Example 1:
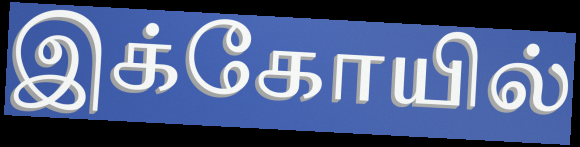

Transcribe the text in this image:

இக்கோயில்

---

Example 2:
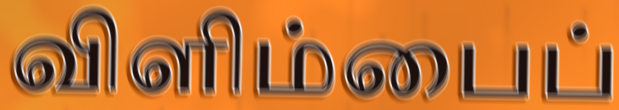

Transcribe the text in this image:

விளிம்பைப்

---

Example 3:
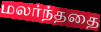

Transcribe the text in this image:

மலர்ந்ததை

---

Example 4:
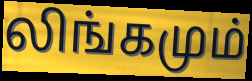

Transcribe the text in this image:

லிங்கமும்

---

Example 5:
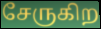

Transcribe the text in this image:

சேருகிற